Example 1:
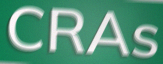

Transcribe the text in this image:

CRAs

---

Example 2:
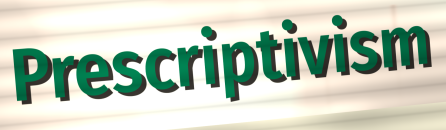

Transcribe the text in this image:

Prescriptivism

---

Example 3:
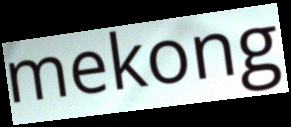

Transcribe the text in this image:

mekong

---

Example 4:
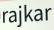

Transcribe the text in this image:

rajkar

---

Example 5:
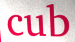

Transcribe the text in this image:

cub